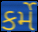
કર્મે